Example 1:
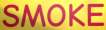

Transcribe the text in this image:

SMOKE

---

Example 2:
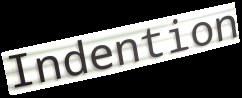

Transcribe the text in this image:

Indention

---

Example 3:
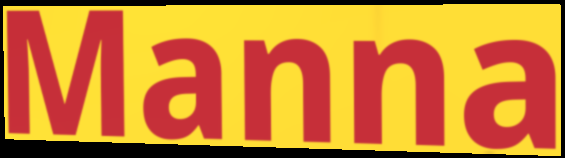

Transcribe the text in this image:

Manna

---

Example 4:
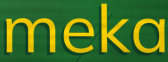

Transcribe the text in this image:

meka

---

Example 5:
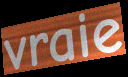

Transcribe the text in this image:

vraie